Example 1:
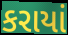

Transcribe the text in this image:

કરાયાં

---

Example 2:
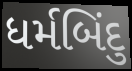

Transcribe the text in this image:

ધર્મબિંદુ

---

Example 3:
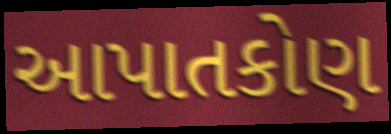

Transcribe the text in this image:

આપાતકોણ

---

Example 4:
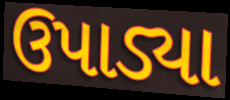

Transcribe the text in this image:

ઉપાડ્યા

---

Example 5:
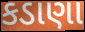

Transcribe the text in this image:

કડાણા